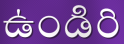
ఉండిరి